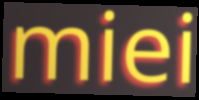
miei